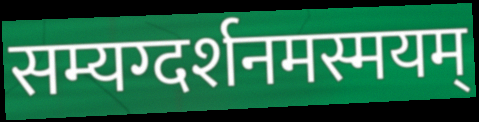
सम्यग्दर्शनमस्मयम्